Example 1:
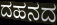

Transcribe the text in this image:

ದಹನದ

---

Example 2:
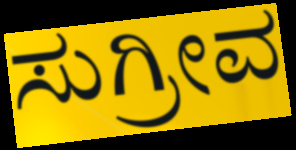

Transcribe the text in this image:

ಸುಗ್ರೀವ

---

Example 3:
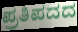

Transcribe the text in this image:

ಪ್ರತಿಪದದ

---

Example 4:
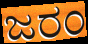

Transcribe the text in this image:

ಜರಂ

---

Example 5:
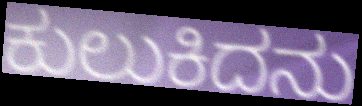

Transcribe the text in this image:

ಕುಲುಕಿದನು